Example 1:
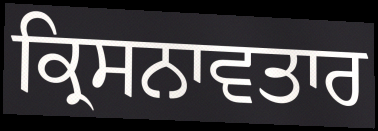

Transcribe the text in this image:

ਕ੍ਰਿਸਨਾਵਤਾਰ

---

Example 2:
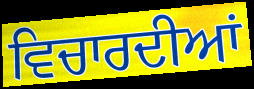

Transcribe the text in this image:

ਵਿਚਾਰਦੀਆਂ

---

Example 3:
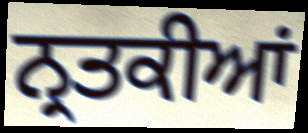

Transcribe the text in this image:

ਨ੍ਰਤਕੀਆਂ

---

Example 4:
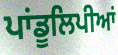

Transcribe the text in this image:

ਪਾਂਡੂਲਿਪੀਆਂ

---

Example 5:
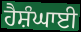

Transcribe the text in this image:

ਹੈਸ਼ੰਘਾਈ